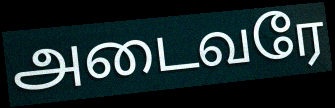
அடைவரே